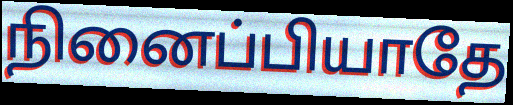
நினைப்பியாதே